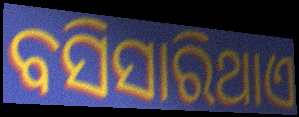
ବସିସାରିଥାଏ